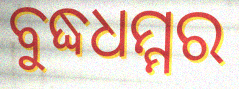
ବୁଦ୍ଧଧମ୍ମର